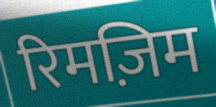
रिमज़िम